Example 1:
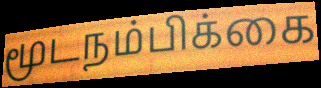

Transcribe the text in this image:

மூடநம்பிக்கை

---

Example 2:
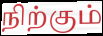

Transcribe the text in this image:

நிற்கும்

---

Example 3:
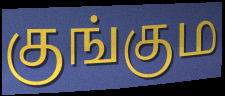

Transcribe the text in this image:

குங்கும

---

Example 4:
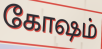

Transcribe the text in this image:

கோஷம்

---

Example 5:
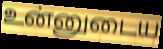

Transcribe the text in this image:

உன்னுடைய